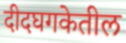
दीदघगकेतील